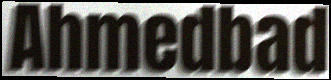
Ahmedbad